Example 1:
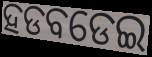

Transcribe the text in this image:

ହଡବଡେଇ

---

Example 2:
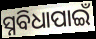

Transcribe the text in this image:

ସ୍ନବିଧାପାଇଁ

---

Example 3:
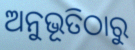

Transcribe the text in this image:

ଅନୁଭୂତିଠାରୁ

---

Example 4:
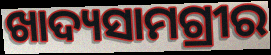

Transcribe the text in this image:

ଖାଦ୍ୟସାମଗ୍ରୀର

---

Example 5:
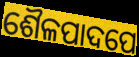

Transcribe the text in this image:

ଶୈଳପାଦପେ